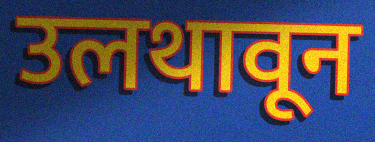
उलथावून